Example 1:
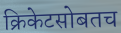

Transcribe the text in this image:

क्रिकेटसोबतच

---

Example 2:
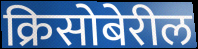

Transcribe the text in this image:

क्रिसोबेरील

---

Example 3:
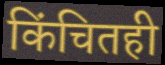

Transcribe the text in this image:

किंचितही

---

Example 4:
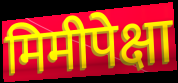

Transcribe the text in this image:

मिमीपेक्षा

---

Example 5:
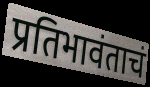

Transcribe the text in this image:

प्रतिभावंताचं